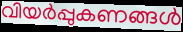
വിയർപ്പുകണങ്ങൾ